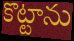
కొట్టాను